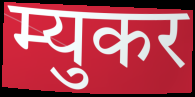
म्युकर